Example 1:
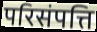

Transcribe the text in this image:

परिसंपत्ति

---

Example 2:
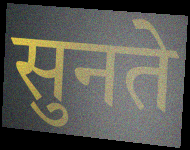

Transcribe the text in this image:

सुनते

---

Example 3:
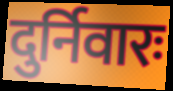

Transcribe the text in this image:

दुर्निवारः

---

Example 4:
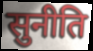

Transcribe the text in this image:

सुनीति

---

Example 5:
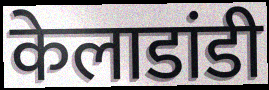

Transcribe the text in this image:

केलाडांडी